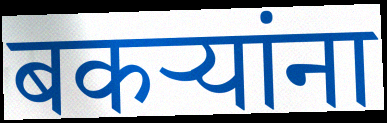
बकर्‍यांना